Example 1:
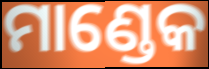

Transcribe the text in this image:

ମାଣ୍ଡେକ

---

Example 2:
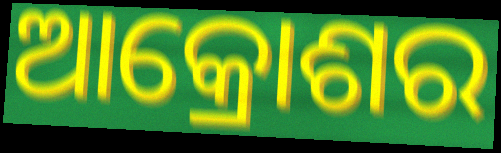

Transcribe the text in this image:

ଆକ୍ରୋଶର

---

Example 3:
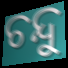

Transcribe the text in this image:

ଚନ୍ଦୁ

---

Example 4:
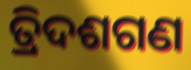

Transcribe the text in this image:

ତ୍ରିଦଶଗଣ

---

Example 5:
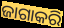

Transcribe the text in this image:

ଜାଗାକରି